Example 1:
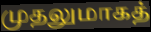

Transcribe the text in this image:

முதலுமாகத்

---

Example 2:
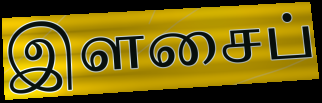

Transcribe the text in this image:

இளசைப்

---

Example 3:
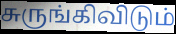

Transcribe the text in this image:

சுருங்கிவிடும்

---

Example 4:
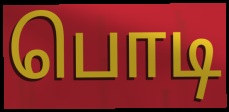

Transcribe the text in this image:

பொடி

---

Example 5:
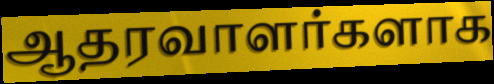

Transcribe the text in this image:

ஆதரவாளர்களாக